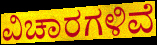
ವಿಚಾರಗಳಿವೆ